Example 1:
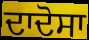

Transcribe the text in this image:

ਦਾਦੋਸਾ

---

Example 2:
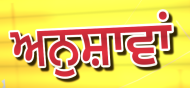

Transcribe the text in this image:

ਅਨੁਸ਼ਾਵਾਂ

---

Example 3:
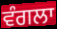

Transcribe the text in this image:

ਵੰਗਲਾ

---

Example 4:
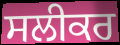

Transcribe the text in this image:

ਸਲੀਕਰ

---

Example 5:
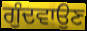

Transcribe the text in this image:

ਗੁੰਦਵਾਉਣ